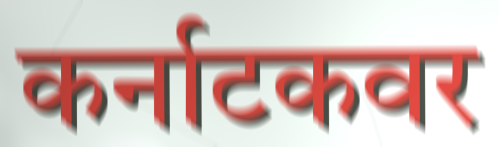
कर्नाटकवर